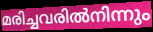
മരിച്ചവരിൽനിന്നും